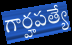
గార్హపత్యే